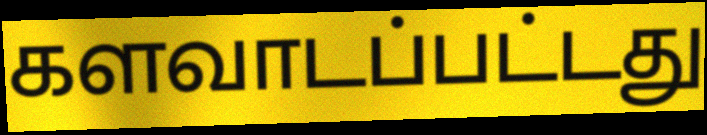
களவாடப்பட்டது